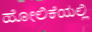
ಹೋಲಿಕೆಯಲ್ಲಿ